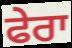
ਫੇਰਾ